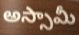
అస్సామీ